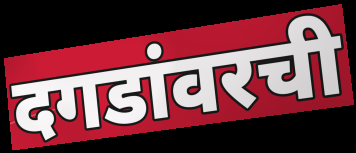
दगडांवरची